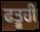
ਫਤੂਹੀ